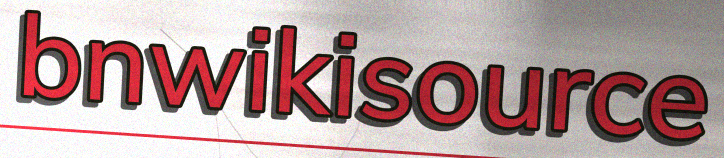
bnwikisource